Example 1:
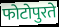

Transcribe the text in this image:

फोटोपुरते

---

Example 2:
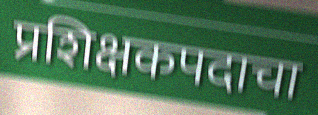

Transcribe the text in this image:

प्रशिक्षकपदाचा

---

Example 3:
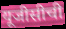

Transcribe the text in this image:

यूजीसीची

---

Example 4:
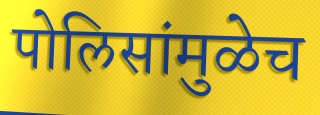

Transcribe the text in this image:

पोलिसांमुळेच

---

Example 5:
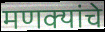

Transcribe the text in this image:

मणक्यांचे